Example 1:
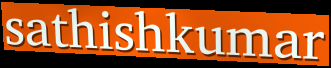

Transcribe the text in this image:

sathishkumar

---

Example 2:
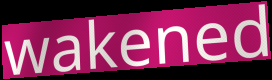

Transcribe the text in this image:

wakened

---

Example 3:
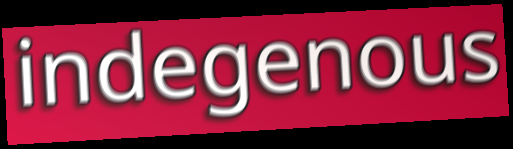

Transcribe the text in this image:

indegenous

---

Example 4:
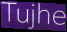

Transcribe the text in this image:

Tujhe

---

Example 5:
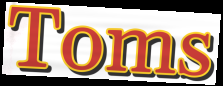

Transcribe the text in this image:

Toms